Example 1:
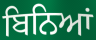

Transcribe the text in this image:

ਬਿਨਿਆਂ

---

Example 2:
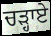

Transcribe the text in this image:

ਚੜ੍ਹਾਏ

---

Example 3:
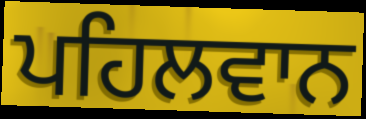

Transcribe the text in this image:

ਪਹਿਲਵਾਨ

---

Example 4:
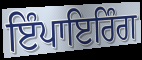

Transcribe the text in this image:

ਇੰਪਾਇਰਿੰਗ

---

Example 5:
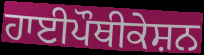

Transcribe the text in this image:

ਹਾਈਪੌਥੀਕੇਸ਼ਨ